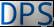
DPS